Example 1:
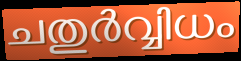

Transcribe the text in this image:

ചതുർവ്വിധം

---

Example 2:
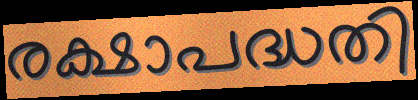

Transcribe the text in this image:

രക്ഷാപദ്ധതി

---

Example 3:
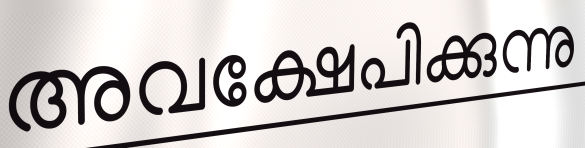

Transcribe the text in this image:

അവക്ഷേപിക്കുന്നു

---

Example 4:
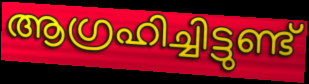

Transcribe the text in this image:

ആഗ്രഹിച്ചിട്ടുണ്ട്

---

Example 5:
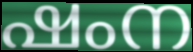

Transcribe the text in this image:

ഷംന